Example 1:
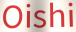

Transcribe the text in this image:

Oishi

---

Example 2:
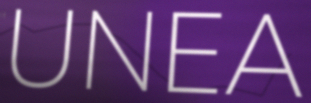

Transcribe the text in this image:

UNEA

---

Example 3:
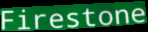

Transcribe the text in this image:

Firestone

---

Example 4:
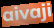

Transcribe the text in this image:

aivaji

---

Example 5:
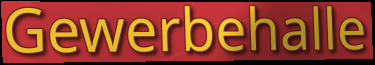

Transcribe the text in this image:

Gewerbehalle